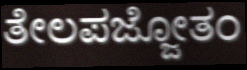
ತೇಲಪಜ್ಜೋತಂ